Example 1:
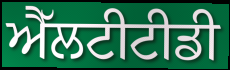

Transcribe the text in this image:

ਐੱਲਟੀਟੀਡੀ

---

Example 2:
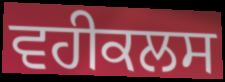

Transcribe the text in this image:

ਵਹੀਕਲਸ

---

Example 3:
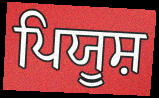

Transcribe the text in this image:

ਪਿਯੂਸ਼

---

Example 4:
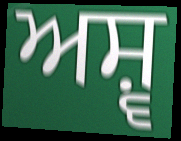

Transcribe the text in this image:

ਅਸ਼੍ਵ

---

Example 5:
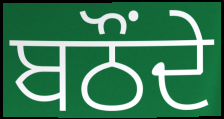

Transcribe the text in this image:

ਬਠੌਂਦੇ